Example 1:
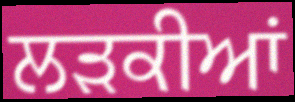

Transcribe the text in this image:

ਲੜਕੀਆਂ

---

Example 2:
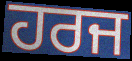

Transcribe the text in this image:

ਹਰਜ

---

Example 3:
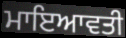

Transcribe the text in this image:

ਮਾਇਆਵਤੀ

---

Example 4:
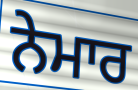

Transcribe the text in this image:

ਨੇਮਾਰ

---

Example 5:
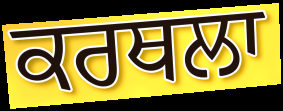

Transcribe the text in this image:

ਕਰਥਲਾ